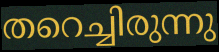
തറെച്ചിരുന്നു